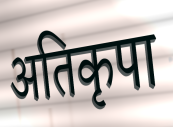
अतिकृपा